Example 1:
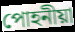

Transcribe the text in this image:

পোহনীয়া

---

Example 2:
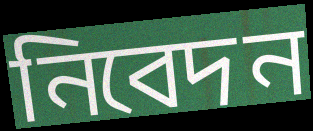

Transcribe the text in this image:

নিবেদন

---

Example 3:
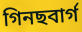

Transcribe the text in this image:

গিনছবাৰ্গ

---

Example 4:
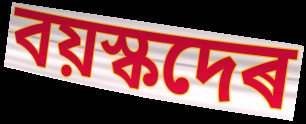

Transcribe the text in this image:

বয়স্কদেৰ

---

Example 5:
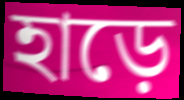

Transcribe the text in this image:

হাড়ে